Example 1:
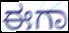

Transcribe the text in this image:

ಈಗಾ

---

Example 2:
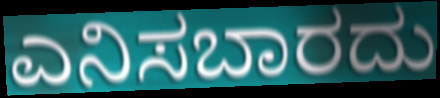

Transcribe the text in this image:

ಎನಿಸಬಾರದು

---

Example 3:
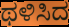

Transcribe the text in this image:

ಥಳಿಸಿದ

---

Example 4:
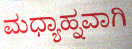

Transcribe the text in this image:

ಮಧ್ಯಾಹ್ನವಾಗಿ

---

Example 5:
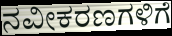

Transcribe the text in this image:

ನವೀಕರಣಗಳಿಗೆ